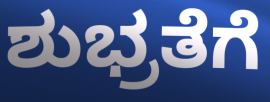
ಶುಭ್ರತೆಗೆ